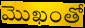
మొఖంతో